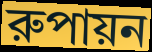
রুপায়ন